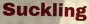
Suckling